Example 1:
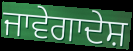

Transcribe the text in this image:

ਜਾਵੇਗਾਦੇਸ਼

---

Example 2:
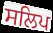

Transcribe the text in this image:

ਸਲਿਪ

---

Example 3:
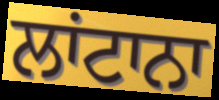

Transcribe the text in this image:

ਲਾਂਟਾਨਾ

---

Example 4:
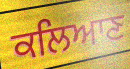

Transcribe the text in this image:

ਕਲਿਆਣ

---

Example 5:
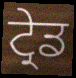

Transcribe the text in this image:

ਟ੍ਰੇਡ